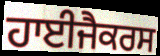
ਹਾਈਜੈਕਰਸ